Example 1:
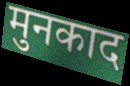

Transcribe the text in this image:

मुनकाद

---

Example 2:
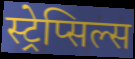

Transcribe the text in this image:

स्ट्रेप्सिल्स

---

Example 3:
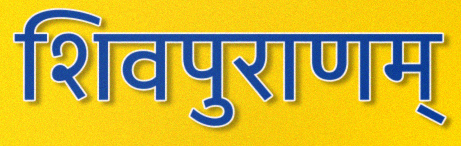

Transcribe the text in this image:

शिवपुराणम्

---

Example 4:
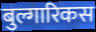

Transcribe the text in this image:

बुल्गारिकस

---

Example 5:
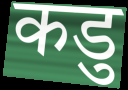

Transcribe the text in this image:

कडु